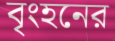
বৃংহনের